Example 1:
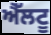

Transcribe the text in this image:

ਐੱਲਟੂ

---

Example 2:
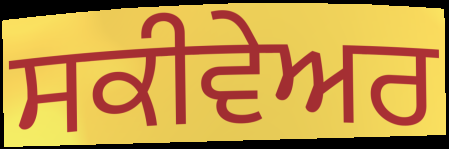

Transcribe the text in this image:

ਸਕੀਵੇਅਰ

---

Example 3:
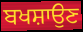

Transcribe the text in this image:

ਬਖਸ਼ਾਉਣ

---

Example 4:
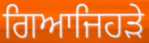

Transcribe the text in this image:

ਗਿਆਜਿਹੜੇ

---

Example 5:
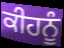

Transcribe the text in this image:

ਕੀਹਨੂੰ